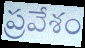
ప్రవేశం